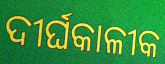
ଦୀର୍ଘକାଳୀକ